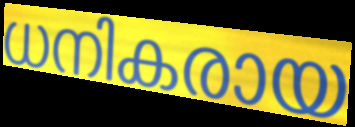
ധനികരായ